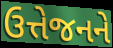
ઉત્તેજનને